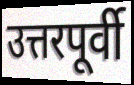
उत्तरपूर्वी